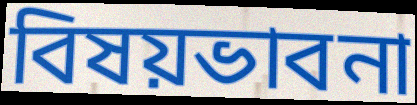
বিষয়ভাবনা